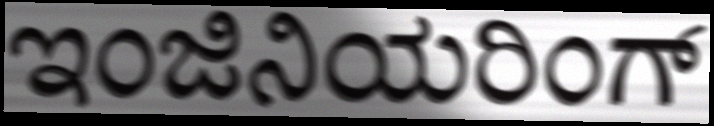
ಇಂಜಿನಿಯರಿಂಗ್